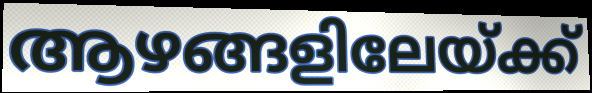
ആഴങ്ങളിലേയ്ക്ക്